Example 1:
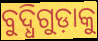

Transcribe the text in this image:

ବୁଦ୍ଧିଗୁଡ଼ାକୁ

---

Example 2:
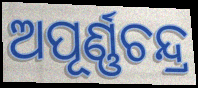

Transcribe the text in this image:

ଅପୂର୍ଣ୍ଣଚନ୍ଦ୍ର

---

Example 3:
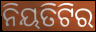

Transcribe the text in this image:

ନିୟତିଟିର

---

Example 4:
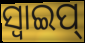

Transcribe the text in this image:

ସ୍ୱାଇପ୍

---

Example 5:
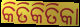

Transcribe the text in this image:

କିତିକିତିକା